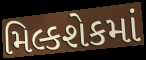
મિલ્કશેકમાં